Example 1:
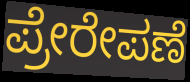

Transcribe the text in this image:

ಪ್ರೇರೇಪಣೆ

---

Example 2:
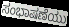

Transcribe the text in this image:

ಸಂಭಾಷಣೆಯು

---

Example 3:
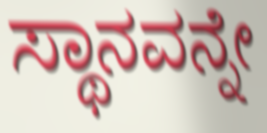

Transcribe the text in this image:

ಸ್ಥಾನವನ್ನೇ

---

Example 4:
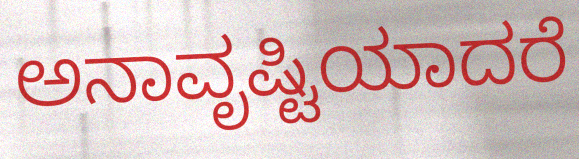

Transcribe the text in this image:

ಅನಾವೃಷ್ಟಿಯಾದರೆ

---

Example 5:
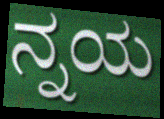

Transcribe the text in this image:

ನ್ನಯ